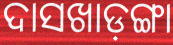
ଦାସଖାଡ଼ଙ୍ଗା